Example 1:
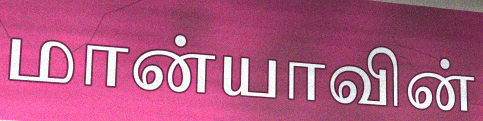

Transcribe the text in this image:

மான்யாவின்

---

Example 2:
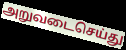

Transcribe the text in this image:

அறுவடைசெய்து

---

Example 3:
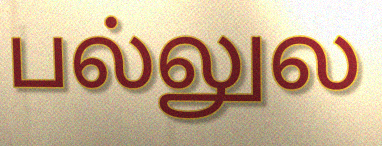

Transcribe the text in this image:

பல்லுல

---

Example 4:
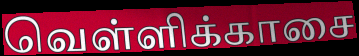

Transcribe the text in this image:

வெள்ளிக்காசை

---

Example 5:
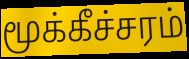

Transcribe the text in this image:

மூக்கீச்சரம்